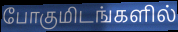
போகுமிடங்களில்